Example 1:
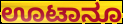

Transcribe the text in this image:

ಊಟಾನೂ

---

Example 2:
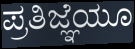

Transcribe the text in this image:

ಪ್ರತಿಜ್ಞೆಯೂ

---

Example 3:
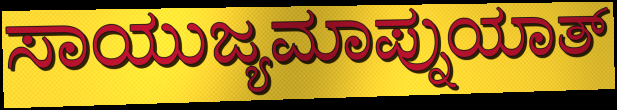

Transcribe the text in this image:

ಸಾಯುಜ್ಯಮಾಪ್ನುಯಾತ್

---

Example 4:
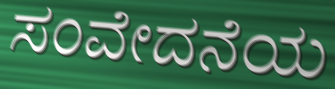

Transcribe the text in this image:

ಸಂವೇದನೆಯ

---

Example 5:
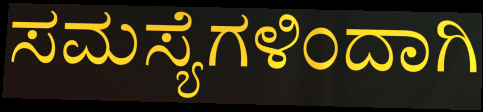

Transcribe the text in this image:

ಸಮಸ್ಯೆಗಳಿಂದಾಗಿ